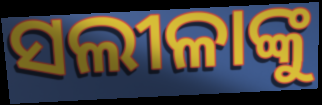
ସଲୀଳାଙ୍କୁ